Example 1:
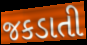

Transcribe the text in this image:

જકડાતી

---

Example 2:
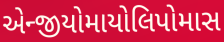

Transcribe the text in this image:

એન્જીયોમાયોલિપોમાસ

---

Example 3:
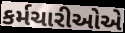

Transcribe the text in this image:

કર્મચારીઓએ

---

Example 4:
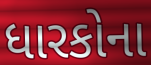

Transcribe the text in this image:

ધારકોના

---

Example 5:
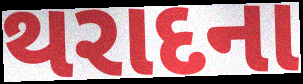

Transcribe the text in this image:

થરાદના